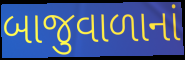
બાજુવાળાનાં